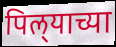
पिल्याच्या